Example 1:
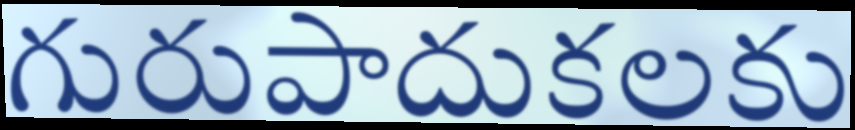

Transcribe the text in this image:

గురుపాదుకలకు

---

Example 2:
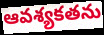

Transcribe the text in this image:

ఆవశ్యకతను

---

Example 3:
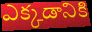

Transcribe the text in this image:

ఎక్కడానికి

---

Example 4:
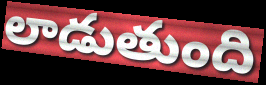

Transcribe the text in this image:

లాడుతుంది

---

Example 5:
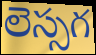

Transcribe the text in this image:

లెస్సగ